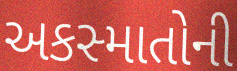
અકસ્માતોની